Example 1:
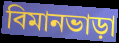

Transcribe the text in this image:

বিমানভাড়া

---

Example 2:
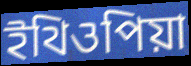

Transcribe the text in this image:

ইথিওপিয়া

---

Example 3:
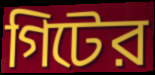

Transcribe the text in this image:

গিটের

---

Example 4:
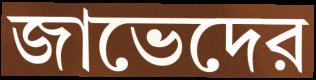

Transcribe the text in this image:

জাভেদের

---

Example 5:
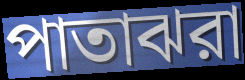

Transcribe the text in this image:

পাতাঝরা